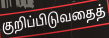
குறிப்பிடுவதைத்